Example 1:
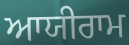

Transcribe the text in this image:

ਆਯੀਰਾਮ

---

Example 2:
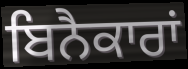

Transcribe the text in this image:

ਬਿਨੈਕਾਰਾਂ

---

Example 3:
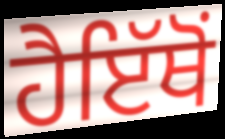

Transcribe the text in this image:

ਹੈਇੱਥੋਂ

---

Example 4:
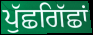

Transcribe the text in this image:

ਪੁੱਛਗਿੱਛਾਂ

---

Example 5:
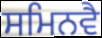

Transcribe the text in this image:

ਸਮਿਨਵੈ